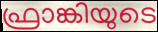
ഫ്രാങ്കിയുടെ